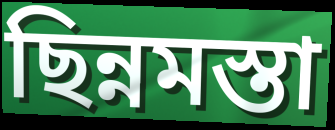
ছিন্নমস্তা